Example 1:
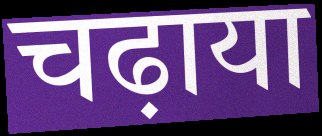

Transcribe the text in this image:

चढ़ाया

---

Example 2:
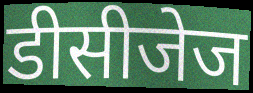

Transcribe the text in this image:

डीसीजेज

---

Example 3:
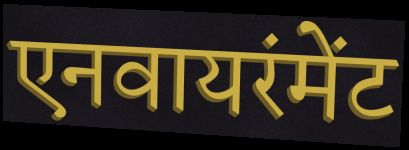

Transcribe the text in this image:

एनवायरंमेंट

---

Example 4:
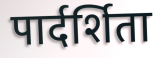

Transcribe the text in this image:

पार्दर्शिता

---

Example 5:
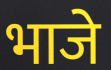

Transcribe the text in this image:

भाजे